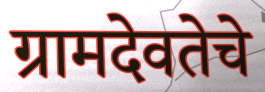
ग्रामदेवतेचे